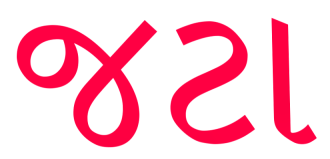
જટા